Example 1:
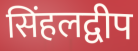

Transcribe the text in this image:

सिंहलद्वीप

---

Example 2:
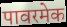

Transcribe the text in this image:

पावरमेक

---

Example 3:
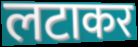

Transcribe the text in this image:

लटाकर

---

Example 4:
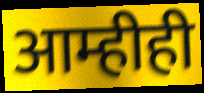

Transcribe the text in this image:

आम्हीही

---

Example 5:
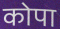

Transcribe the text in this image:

कोपा